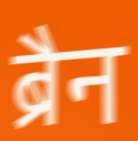
ब्रैन